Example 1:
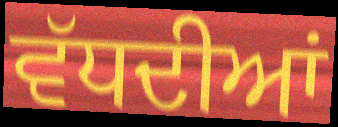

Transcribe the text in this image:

ਵੱਧਦੀਆਂ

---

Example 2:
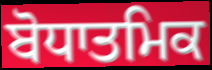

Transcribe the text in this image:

ਬੋਧਾਤਮਿਕ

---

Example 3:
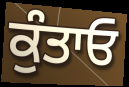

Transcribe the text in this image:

ਕੁੰਤਾਓ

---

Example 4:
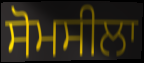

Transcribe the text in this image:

ਸੋਮਸੀਲਾ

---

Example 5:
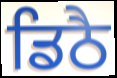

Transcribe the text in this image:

ਡਿਠੈ